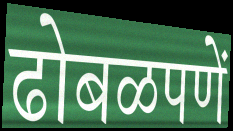
ढोबळपणें